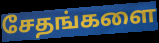
சேதங்களை